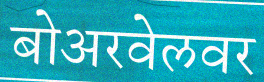
बोअरवेलवर